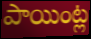
పాయింట్ల